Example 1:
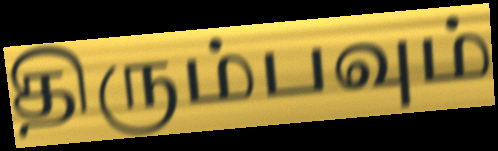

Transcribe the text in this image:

திரும்பவும்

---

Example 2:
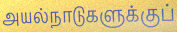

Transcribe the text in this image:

அயல்நாடுகளுக்குப்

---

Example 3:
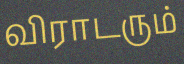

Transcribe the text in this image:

விராடரும்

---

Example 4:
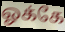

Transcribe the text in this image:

ஓக்கே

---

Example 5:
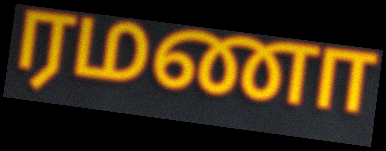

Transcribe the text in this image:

ரமணா